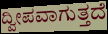
ದ್ವೀಪವಾಗುತ್ತದೆ